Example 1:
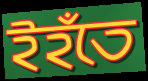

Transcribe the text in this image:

ইহঁতে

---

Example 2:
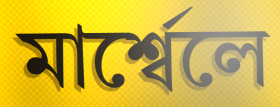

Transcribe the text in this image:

মাৰ্শ্বেলে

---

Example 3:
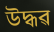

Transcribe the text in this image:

উদ্ধৱ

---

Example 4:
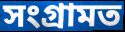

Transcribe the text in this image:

সংগ্ৰামত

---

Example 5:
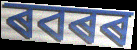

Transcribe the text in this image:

ৰবৰৰ